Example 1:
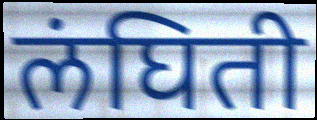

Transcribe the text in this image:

लंघिती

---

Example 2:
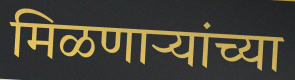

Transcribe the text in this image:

मिळणाऱ्यांच्या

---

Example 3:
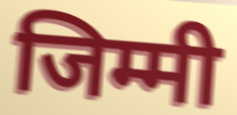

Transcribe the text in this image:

जिम्मी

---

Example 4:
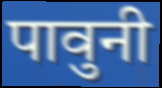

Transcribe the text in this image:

पावुनी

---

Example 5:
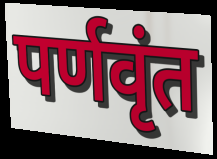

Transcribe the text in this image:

पर्णवृंत